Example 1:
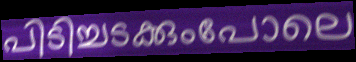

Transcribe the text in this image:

പിടിച്ചടക്കുംപോലെ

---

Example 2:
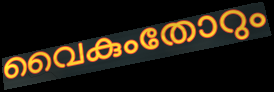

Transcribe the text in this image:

വൈകുംതോറും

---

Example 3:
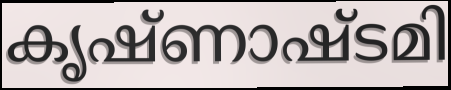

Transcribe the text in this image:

കൃഷ്ണാഷ്ടമി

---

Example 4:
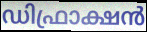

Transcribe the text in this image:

ഡിഫ്രാക്ഷൻ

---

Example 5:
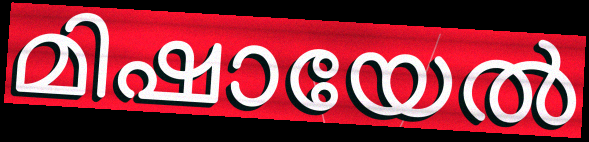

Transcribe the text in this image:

മിഷായേൽ